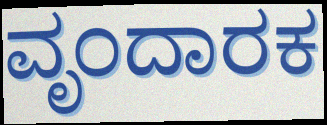
ವೃಂದಾರಕ